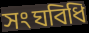
সংঘবিধি